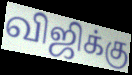
விஜிக்கு